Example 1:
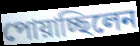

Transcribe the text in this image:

পোয়াচ্ছিলেন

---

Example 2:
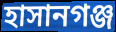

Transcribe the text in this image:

হাসানগঞ্জ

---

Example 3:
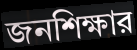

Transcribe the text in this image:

জনশিক্ষার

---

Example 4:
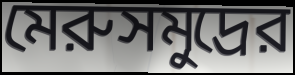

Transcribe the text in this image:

মেরুসমুদ্রের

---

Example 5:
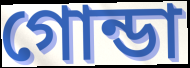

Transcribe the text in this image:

গোন্ডা